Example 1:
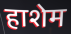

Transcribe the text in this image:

हाशेम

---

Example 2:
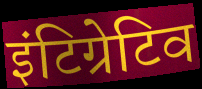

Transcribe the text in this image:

इंटिग्रेटिव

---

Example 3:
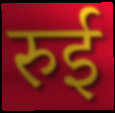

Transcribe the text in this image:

रुई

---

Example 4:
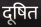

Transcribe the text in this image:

दूषित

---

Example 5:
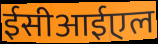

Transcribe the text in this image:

ईसीआईएल